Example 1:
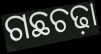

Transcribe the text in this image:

ଗଛଚଢ଼ା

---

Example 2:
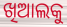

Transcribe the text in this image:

ଖିଆଲକୁ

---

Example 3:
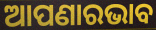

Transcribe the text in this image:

ଆପଣାରଭାବ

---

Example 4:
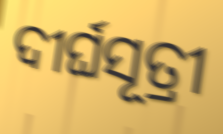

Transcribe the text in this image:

ଦୀର୍ଘସୂତ୍ରୀ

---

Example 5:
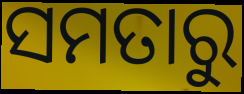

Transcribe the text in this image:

ସମତାରୁ